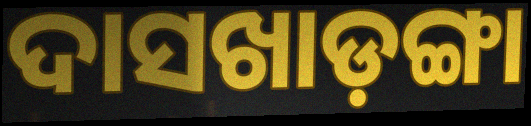
ଦାସଖାଡ଼ଙ୍ଗା